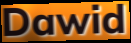
Dawid